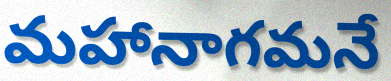
మహానాగమనే